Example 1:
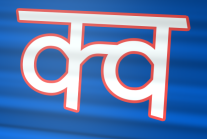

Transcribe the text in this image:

क्व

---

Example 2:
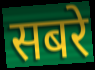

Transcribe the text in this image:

सबरे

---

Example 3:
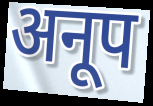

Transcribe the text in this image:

अनूप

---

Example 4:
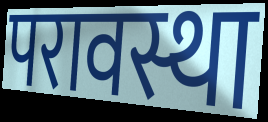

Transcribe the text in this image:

परावस्था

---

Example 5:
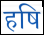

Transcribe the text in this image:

हषि